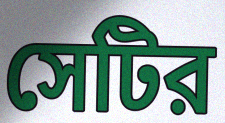
সেটির